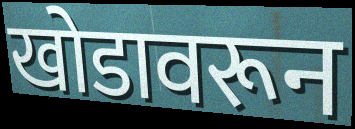
खोडावरून